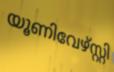
യൂണിവേഴ്സ്റ്റി